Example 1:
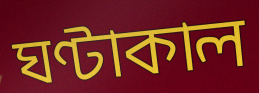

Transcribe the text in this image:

ঘণ্টাকাল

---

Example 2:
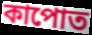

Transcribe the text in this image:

কাপোত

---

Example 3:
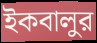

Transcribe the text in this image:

ইকবালুর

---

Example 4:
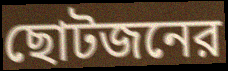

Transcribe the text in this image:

ছোটজনের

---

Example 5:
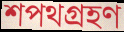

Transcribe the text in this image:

শপথগ্রহণ